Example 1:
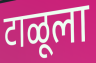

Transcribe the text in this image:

टाळूला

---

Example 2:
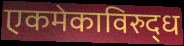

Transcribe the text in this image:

एकमेकाविरुद्ध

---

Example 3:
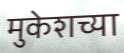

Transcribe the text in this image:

मुकेशच्या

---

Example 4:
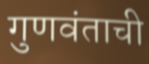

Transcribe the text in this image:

गुणवंताची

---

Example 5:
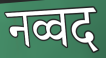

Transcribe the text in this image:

नव्वद